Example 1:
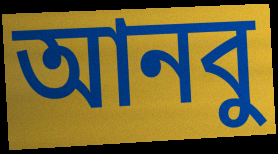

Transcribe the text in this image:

আনবু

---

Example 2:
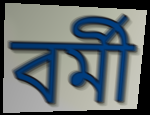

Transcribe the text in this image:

বর্মী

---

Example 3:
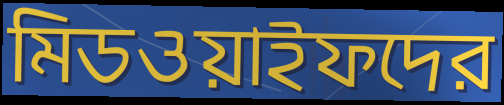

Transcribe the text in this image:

মিডওয়াইফদের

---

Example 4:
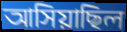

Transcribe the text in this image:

আসিয়াছিল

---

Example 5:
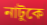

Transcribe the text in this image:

নাটুকে